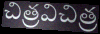
చిత్రవిచిత్ర